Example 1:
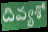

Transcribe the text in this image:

దివ్యశో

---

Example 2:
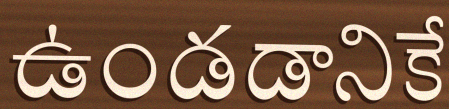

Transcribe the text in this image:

ఉండడానికే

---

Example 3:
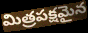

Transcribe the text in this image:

మిత్రపక్షమైన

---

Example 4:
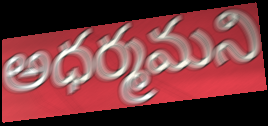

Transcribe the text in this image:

అధర్మమని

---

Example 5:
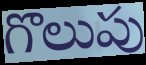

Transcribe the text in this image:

గొలుపు